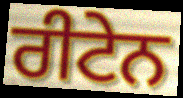
ਰੀਟੇਨ